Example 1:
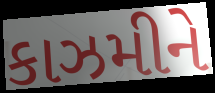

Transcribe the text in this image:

કાઝમીને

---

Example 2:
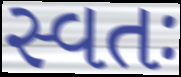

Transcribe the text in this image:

સ્વતઃ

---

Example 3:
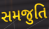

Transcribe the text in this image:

સમજુતિ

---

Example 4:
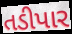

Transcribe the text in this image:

તડીપાર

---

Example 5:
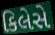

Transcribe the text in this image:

કિલેસે